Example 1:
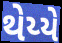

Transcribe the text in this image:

થેય્યે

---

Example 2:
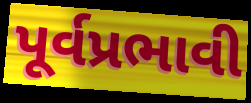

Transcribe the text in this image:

પૂર્વપ્રભાવી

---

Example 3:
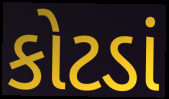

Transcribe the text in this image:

કોટડાં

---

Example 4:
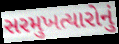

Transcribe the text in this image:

સરમુખત્યારોનું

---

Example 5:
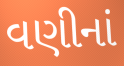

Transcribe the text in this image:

વણીનાં